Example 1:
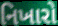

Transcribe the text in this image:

નિખારો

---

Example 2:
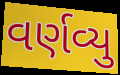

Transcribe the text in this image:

વર્ણવ્યુ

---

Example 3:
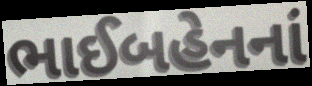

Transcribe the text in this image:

ભાઈબહેનનાં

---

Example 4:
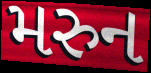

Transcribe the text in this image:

મરુન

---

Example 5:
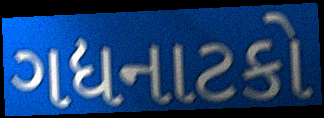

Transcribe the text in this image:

ગદ્યનાટકો